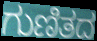
ಗುಣಿತದ